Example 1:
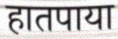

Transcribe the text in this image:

हातपाया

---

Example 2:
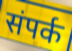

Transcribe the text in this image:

संपर्क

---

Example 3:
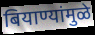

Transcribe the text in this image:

बियाण्यांमुळे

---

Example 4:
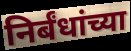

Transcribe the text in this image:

निर्बंधांच्या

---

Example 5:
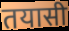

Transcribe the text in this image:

तयासी